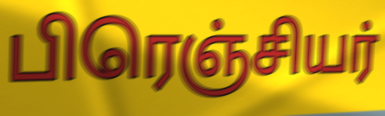
பிரெஞ்சியர்